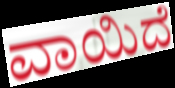
ವಾಯಿದೆ